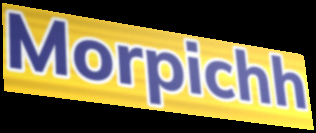
Morpichh